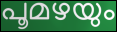
പൂമഴയും